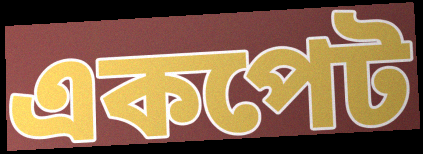
একপেট